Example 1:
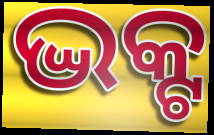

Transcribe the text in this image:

ଦ୍ଭକ୍ଟ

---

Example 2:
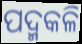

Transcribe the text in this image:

ପଦ୍ମକଳି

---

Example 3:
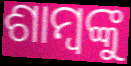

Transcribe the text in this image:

ଶାମ୍ବଙ୍କୁ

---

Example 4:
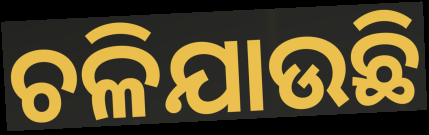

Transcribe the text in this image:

ଚଳିଯାଉଛି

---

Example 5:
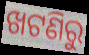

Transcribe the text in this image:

ଖଟଣିରୁ